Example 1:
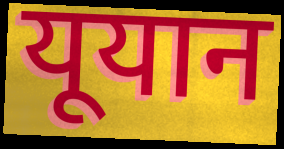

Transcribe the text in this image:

यूयान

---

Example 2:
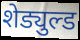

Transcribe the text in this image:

शेड्युल्ड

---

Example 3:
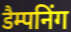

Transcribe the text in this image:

डैम्पनिंग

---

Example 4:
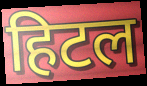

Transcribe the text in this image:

हिटल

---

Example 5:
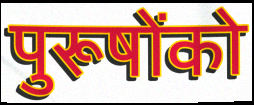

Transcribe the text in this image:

पुरूषोंको